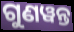
ଗୁଣୱନ୍ତ